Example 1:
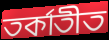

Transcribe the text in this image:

তৰ্কাতীত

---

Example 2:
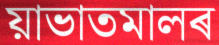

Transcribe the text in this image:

য়াভাতমালৰ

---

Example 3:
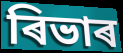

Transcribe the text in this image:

ৰিভাৰ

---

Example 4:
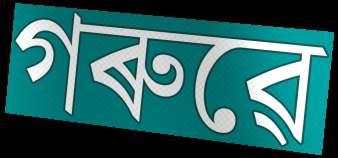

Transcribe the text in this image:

গৰুৱে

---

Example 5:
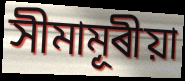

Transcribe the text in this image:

সীমামূৰীয়া